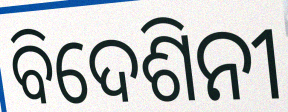
ବିଦେଶିନୀ